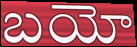
బయో